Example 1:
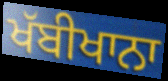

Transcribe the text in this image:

ਖੱਬੀਖਾਨਾ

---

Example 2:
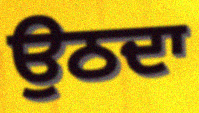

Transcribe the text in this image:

ਉਠਦਾ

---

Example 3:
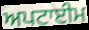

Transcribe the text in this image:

ਅਪਟਾਈਮ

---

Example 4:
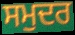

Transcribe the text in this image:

ਸਮੁਦਰ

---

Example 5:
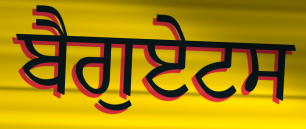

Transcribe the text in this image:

ਬੈਗੁਏਟਸ